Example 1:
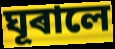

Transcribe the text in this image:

ঘূৰালে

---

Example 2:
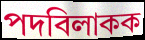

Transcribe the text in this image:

পদবিলাকক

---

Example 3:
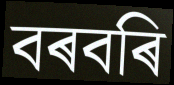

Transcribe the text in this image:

বৰবৰি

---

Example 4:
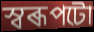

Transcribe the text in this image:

স্বৰূপটো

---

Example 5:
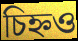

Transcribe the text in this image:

চিহ্নও